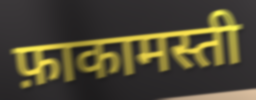
फ़ाकामस्ती